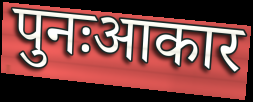
पुनःआकार